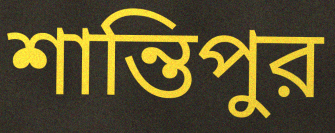
শান্তিপুর